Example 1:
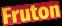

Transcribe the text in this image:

Fruton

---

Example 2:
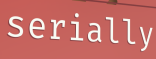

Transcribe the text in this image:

serially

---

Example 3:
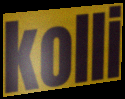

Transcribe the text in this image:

kolli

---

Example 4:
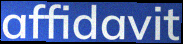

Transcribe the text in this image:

affidavit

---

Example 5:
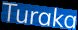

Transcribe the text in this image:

Turaka